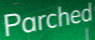
Parched